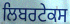
ਲਿਬਰਟੇਕਸ